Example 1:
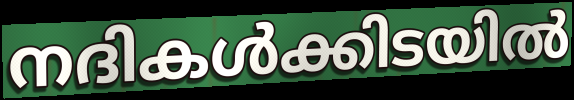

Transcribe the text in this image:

നദികൾക്കിടയിൽ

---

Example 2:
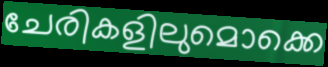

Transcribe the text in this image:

ചേരികളിലുമൊക്കെ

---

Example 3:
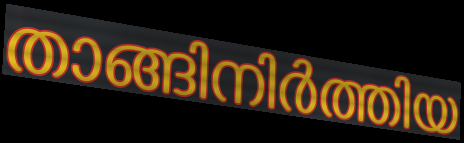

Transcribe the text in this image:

താങ്ങിനിർത്തിയ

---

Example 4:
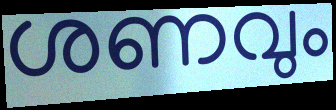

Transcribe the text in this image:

ശണവും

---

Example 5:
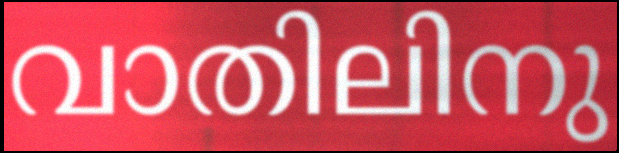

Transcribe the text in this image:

വാതിലിനു